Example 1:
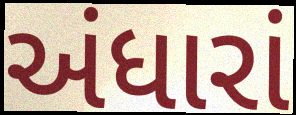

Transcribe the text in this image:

અંધારાં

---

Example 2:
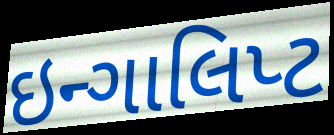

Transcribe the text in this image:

ઇન્ગાલિપ્ટ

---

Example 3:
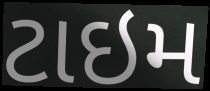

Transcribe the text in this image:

ટાઇમ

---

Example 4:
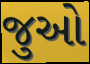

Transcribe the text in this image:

જુઓ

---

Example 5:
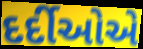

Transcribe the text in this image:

દર્દીઓએ